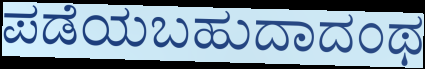
ಪಡೆಯಬಹುದಾದಂಥ